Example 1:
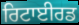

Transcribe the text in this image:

ਰਿਟਾਈਰਡ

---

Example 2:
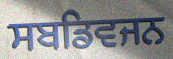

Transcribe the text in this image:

ਸਬਡਿਵਜਨ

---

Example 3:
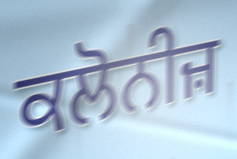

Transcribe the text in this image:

ਕਲੋਨੀਜ਼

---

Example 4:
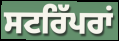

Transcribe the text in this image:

ਸਟਰਿੱਪਰਾਂ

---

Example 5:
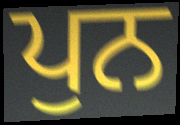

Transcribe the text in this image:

ਪੁਨ